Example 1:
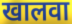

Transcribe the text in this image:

खालवा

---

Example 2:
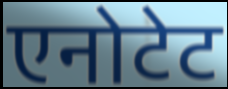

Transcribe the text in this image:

एनोटेट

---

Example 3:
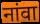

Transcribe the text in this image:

नांवा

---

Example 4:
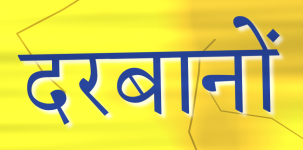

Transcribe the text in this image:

दरबानों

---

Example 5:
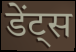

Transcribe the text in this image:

डेंट्स